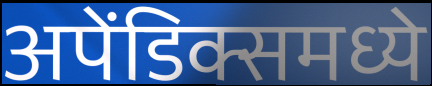
अपेंडिक्समध्ये